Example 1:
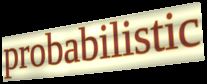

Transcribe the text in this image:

probabilistic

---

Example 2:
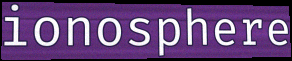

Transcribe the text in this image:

ionosphere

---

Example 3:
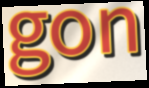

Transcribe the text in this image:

gon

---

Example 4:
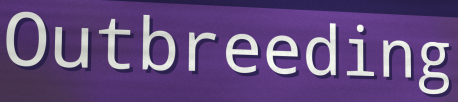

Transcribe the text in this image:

Outbreeding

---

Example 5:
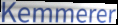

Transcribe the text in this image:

Kemmerer